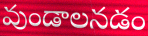
వుండాలనడం